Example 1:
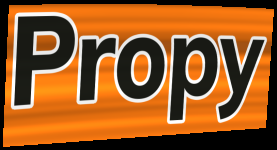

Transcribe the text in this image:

Propy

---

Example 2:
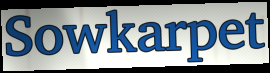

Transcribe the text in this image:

Sowkarpet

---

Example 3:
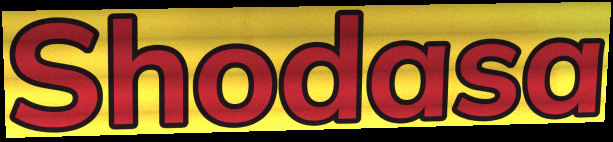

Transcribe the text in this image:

Shodasa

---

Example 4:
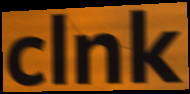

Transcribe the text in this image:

clnk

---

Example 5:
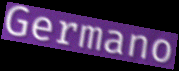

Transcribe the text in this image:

Germano